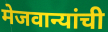
मेजवान्यांची